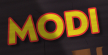
MODI